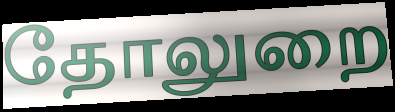
தோலுறை